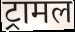
ट्रामल